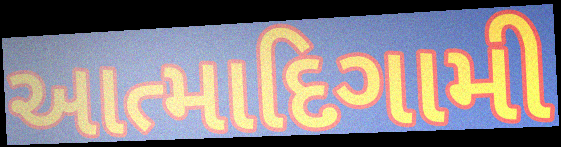
આત્માદિગામી